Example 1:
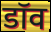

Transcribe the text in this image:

डॉव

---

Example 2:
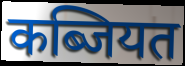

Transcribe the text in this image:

कब्जियत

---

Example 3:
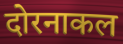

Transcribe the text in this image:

दोरनाकल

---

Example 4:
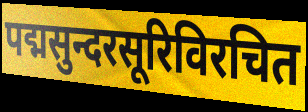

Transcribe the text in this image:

पद्मसुन्दरसूरिविरचित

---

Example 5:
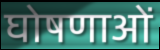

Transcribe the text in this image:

घोषणाओं